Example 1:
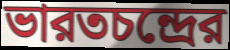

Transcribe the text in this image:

ভারতচন্দ্রের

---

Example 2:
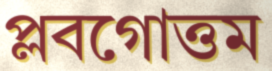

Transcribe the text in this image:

প্লবগোত্তম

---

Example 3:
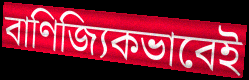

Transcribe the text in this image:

বাণিজ্যিকভাবেই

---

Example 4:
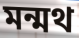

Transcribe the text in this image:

মন্মথ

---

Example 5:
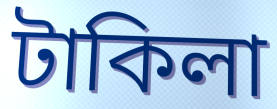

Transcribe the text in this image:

টাকিলা